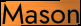
Mason